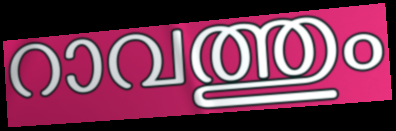
റാവത്തും